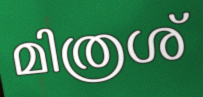
മിത്രശ്